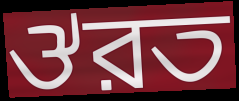
ঔরত